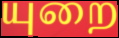
யுறை